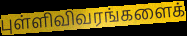
புள்ளிவிவரங்களைக்